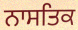
ਨਾਸਤਿਕ